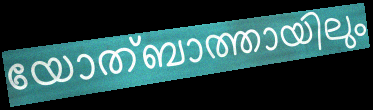
യോത്ബാത്തായിലും